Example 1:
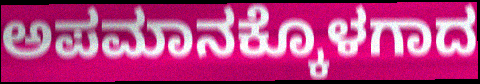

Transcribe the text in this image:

ಅಪಮಾನಕ್ಕೊಳಗಾದ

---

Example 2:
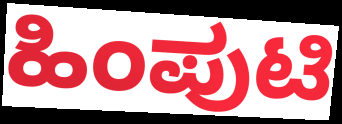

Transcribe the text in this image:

ಹಿಂಪುಟಿ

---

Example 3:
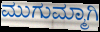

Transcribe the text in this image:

ಮುಗುಮ್ಮಾಗಿ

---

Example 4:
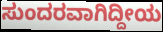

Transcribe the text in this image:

ಸುಂದರವಾಗಿದ್ದೀಯ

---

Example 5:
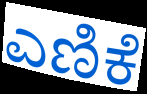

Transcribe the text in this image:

ಎಣಿಕೆ